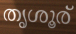
തൃശൂര്